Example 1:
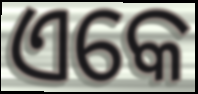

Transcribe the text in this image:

ଏକେ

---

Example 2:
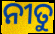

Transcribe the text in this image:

ନୀତୁ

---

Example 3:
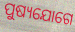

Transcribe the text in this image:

ପୁଷ୍ୟଯୋଗେ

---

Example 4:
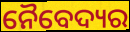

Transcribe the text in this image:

ନୈବେଦ୍ୟର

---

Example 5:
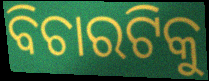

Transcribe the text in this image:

ବିଚାରଟିକୁ